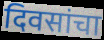
दिवसांचा